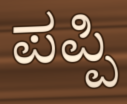
ಪಪ್ಪಿ